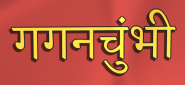
गगनचुंभी